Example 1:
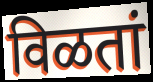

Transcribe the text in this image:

विळतां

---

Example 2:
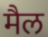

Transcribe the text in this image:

मैल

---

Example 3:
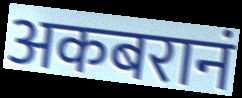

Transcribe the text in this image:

अकबरानं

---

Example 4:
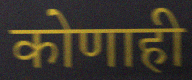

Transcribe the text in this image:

कोणाही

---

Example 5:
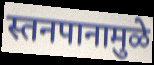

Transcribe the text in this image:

स्तनपानामुळे